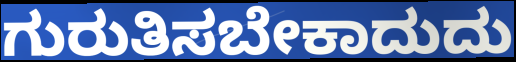
ಗುರುತಿಸಬೇಕಾದುದು